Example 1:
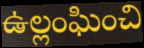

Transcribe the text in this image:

ఉల్లంఘించి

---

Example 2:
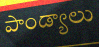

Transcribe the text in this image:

పాండ్యాలు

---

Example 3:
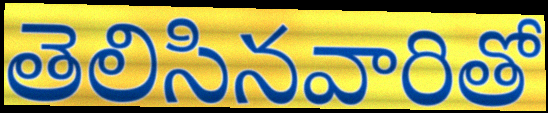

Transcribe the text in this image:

తెలిసినవారితో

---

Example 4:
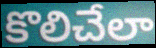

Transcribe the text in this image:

కొలిచేలా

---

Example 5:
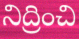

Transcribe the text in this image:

నిద్రించి